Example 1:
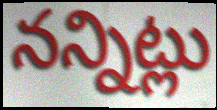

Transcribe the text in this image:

నన్నిట్లు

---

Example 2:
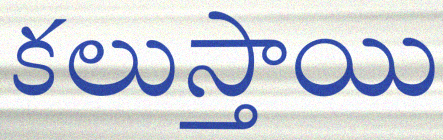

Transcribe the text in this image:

కలుస్తాయి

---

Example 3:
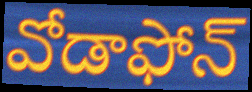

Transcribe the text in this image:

వోడాఫోన్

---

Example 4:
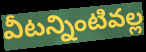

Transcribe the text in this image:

వీటన్నింటివల్ల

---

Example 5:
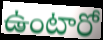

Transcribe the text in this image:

ఉంటారో